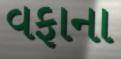
વફાના